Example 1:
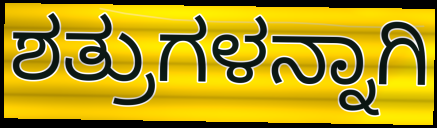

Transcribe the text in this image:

ಶತ್ರುಗಳನ್ನಾಗಿ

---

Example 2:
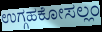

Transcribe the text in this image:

ಉಗ್ಗಹಕೋಸಲ್ಲಂ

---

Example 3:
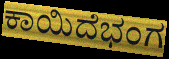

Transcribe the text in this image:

ಕಾಯಿದೆಭಂಗ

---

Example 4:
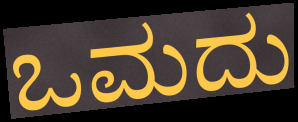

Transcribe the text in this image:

ಒಮದು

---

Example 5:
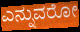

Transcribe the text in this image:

ಎನ್ನುವರೋ